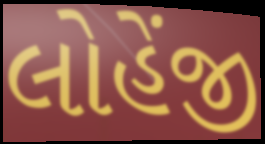
લોહેંજી